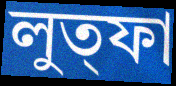
লুত্ফা